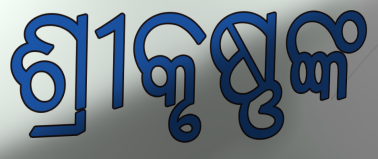
ଶ୍ରୀକୃଷ୍ଣଙ୍କ